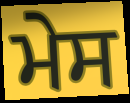
ਮੇਸ